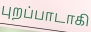
புறப்பாடாகி